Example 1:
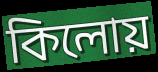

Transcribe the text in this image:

কিলোয়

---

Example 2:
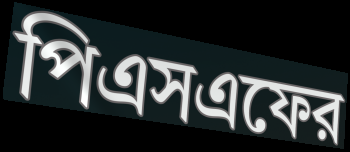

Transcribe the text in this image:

পিএসএফের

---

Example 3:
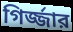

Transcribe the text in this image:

গির্জ্জার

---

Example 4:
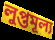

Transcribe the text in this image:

লুপ্তমূল্য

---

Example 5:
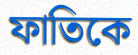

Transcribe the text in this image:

ফাতিকে